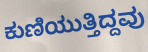
ಕುಣಿಯುತ್ತಿದ್ದವು